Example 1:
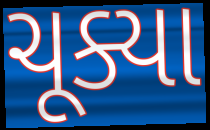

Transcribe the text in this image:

ચૂક્યા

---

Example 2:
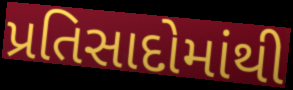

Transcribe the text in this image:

પ્રતિસાદોમાંથી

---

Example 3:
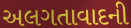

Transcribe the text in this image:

અલગતાવાદની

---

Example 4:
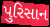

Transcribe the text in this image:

પુરિસાન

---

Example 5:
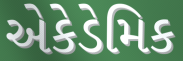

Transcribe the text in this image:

એકેડેમિક